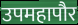
उपमहापौर